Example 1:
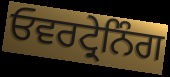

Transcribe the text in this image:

ਓਵਰਟ੍ਰੇਨਿੰਗ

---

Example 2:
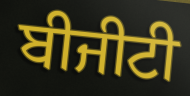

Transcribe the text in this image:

ਬੀਜੀਟੀ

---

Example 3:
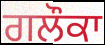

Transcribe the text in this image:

ਗਲੌਕਾ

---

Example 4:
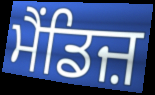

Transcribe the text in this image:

ਮੈਂਡਿਜ਼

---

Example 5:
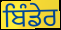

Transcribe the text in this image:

ਬਿੰਡੇਰ